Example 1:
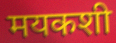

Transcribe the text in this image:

मयकशी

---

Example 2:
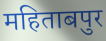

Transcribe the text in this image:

महिताबपुर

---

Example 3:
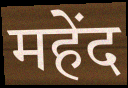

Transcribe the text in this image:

महेंद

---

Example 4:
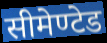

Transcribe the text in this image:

सीमेण्टेड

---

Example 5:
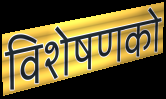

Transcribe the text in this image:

विशेषणको